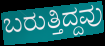
ಬರುತ್ತಿದ್ದವು